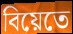
বিয়েতে